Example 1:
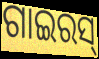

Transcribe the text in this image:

ଗାଇରସ୍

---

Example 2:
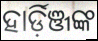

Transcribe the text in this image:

ହାର୍ଡ଼ିଞ୍ଜଙ୍କ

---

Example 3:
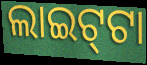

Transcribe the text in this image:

ଲାଇଟ୍‍ଟା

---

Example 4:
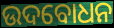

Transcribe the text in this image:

ଉଦବୋଧନ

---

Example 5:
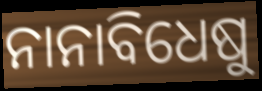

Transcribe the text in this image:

ନାନାବିଧେଷୁ